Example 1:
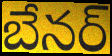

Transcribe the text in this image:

బేనర్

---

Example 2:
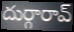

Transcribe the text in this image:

దుర్గారావ్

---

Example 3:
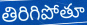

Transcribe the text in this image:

తిరిగిపోతూ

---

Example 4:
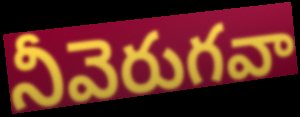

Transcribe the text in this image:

నీవెరుగవా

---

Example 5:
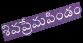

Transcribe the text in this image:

శివప్రేమపిండం